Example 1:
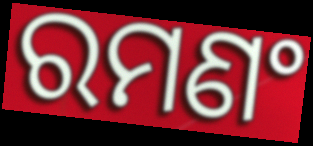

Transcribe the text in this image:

ରମଣଂ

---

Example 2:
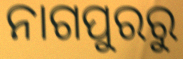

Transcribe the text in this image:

ନାଗପୁରରୁ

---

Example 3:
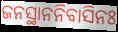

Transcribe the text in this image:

ଜନସ୍ଥାନନିବାସିନଃ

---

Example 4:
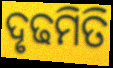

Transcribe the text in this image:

ଦୃଢମିତି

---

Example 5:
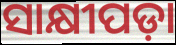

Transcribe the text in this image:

ସାକ୍ଷୀପଡ଼ା